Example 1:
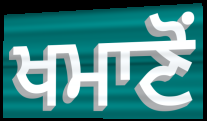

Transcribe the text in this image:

ਖਮਾਣੋਂ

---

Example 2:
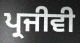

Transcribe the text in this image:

ਪ੍ਰਜੀਵੀ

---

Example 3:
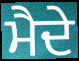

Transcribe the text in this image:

ਮੈਦੇ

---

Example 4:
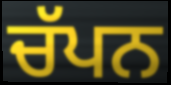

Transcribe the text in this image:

ਚੱਪਨ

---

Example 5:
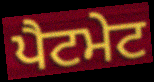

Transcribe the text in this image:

ਪੈਟਮੇਟ